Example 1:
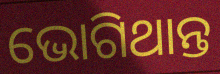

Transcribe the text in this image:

ଭୋଗିଥାନ୍ତ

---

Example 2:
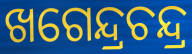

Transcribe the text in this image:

ଖଗେନ୍ଦ୍ରଚନ୍ଦ୍ର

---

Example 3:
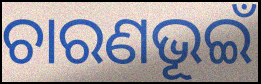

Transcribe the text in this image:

ଚାରଣଭୂଇଁ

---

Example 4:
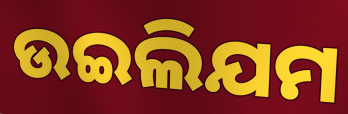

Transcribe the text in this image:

ଉଇଲିଯମ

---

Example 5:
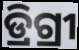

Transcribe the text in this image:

ଡ୍ରିଗ୍ରୀ